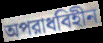
অপরাধবিহীন